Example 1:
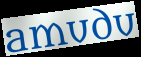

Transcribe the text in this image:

amudu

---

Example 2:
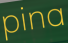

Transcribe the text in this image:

pina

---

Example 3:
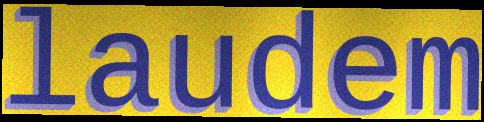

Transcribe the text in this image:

laudem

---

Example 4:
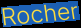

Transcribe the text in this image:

Rocher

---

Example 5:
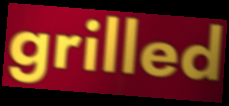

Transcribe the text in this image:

grilled